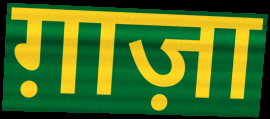
ग़ाज़ा